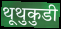
थूथुकुडी